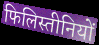
फिलिस्तीनियों